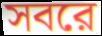
সবরে